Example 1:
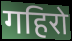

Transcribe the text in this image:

गहिरो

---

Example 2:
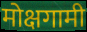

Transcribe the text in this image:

मोक्षगामी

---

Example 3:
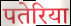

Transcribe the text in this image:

पतेरिया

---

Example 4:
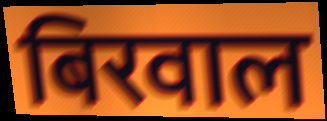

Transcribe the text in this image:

बिरवाल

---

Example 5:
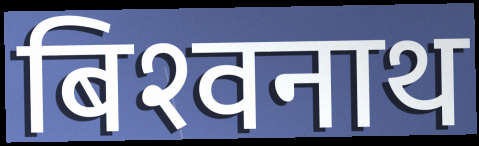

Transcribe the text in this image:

बिश्वनाथ